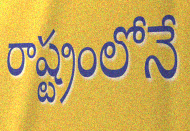
రాష్ట్రంలోనే